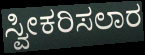
ಸ್ವೀಕರಿಸಲಾರ